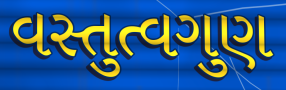
વસ્તુત્વગુણ